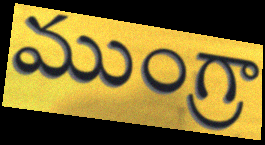
ముంగ్రా